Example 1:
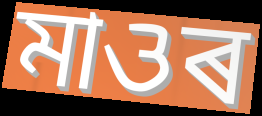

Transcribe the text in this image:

মাওৰ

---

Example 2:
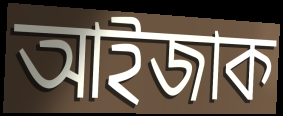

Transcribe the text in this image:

আইজাক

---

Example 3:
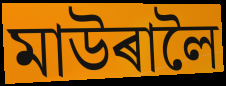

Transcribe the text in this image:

মাউৰালৈ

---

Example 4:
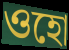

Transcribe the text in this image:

ওহো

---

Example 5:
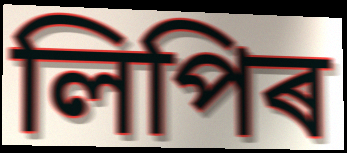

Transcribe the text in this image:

লিপিৰ